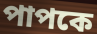
পাপকে